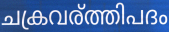
ചക്രവര്ത്തിപദം